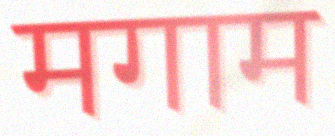
मगाम